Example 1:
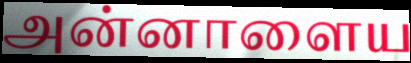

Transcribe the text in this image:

அன்னாளைய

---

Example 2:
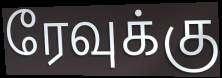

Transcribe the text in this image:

ரேவுக்கு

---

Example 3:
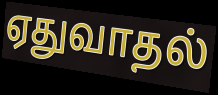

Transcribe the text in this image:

ஏதுவாதல்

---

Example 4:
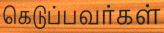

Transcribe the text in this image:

கெடுப்பவர்கள்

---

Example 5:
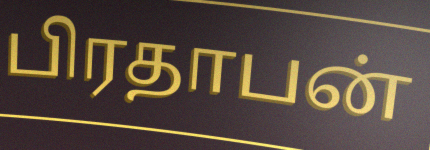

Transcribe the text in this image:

பிரதாபன்